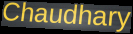
Chaudhary